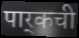
पार्कची